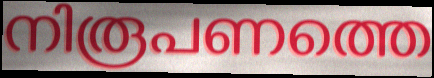
നിരൂപണത്തെ